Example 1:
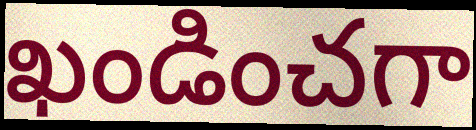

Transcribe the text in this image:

ఖండించగా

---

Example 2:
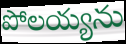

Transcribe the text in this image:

పోలయ్యను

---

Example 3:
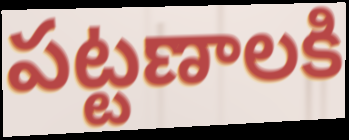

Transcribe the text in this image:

పట్టణాలకి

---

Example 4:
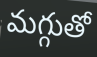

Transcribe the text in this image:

మగ్గుతో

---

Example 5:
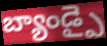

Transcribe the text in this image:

బ్యాండ్పై